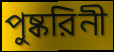
পুষ্করিনী